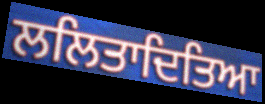
ਲਲਿਤਾਦਿਤਿਆ